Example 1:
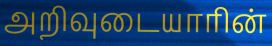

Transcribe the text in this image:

அறிவுடையாரின்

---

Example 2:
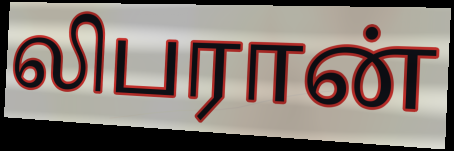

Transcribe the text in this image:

லிபரான்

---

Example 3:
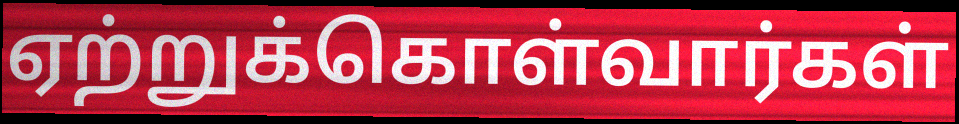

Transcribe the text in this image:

ஏற்றுக்கொள்வார்கள்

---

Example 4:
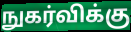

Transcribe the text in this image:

நுகர்விக்கு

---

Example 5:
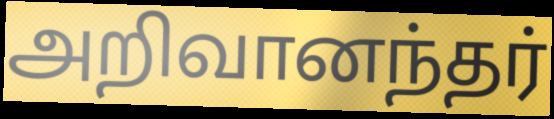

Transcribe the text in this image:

அறிவானந்தர்